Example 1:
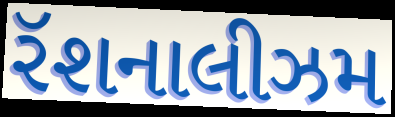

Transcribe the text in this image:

રૅશનાલીઝમ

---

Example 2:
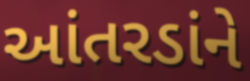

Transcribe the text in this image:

આંતરડાંને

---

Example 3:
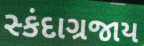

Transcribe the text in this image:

સ્કંદાગ્રજાય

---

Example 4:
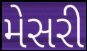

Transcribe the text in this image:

મેસરી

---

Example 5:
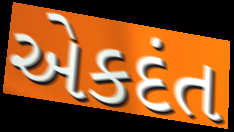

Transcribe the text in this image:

એકદંત